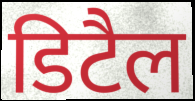
डिटैल